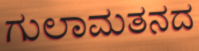
ಗುಲಾಮತನದ